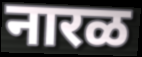
नारळ